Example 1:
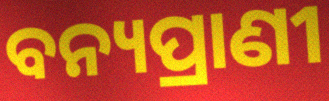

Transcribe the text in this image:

ବନ୍ୟପ୍ରାଣୀ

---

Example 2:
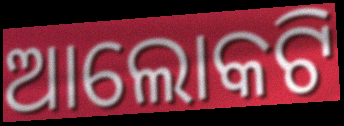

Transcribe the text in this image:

ଆଲୋକଟି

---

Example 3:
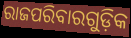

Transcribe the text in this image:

ରାଜପରିବାରଗୁଡ଼ିକ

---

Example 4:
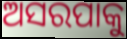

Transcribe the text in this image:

ଅସରପାକୁ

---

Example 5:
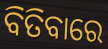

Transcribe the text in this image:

ବିତିବାରେ